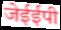
जेईईपी